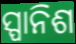
ସ୍ପାନିଶ